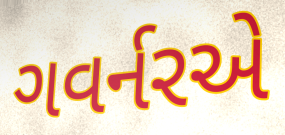
ગવર્નરએ